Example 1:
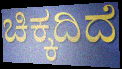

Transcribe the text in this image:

ಚಿಕ್ಕದಿದೆ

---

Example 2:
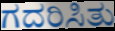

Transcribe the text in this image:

ಗದರಿಸಿತು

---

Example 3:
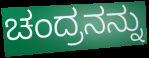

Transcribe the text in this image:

ಚಂದ್ರನನ್ನು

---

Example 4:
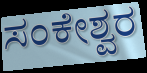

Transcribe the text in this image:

ಸಂಕೇಶ್ವರ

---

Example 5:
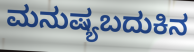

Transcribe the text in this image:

ಮನುಷ್ಯಬದುಕಿನ